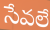
సేవలే